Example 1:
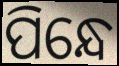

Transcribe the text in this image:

ପିନ୍ଧେ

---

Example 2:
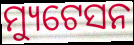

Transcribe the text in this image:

ମ୍ୟୁଟେସନ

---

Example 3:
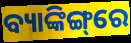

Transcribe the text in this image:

ବ୍ୟାଙ୍କିଙ୍ଗ୍‌ରେ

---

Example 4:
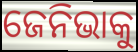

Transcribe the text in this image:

ଜେନିଭାକୁ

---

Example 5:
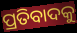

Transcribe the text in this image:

ପ୍ରତିବାଦକୁ